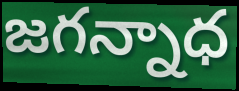
జగన్నాధ